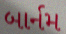
બાર્નમ